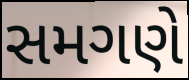
સમગણે